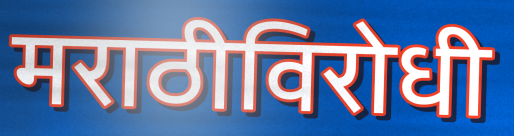
मराठीविरोधी